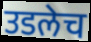
उडलेच